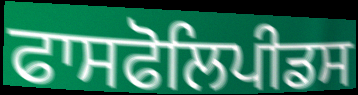
ਫਾਸਫੋਲਿਪੀਡਸ